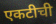
एकटीची